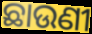
ଛାଉଣୀ